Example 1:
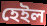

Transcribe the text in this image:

হেইল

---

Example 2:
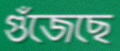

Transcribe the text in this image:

গুঁজেছে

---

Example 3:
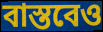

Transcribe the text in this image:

বাস্তবেও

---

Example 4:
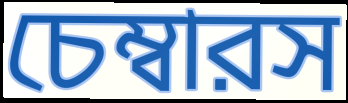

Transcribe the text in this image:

চেম্বারস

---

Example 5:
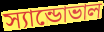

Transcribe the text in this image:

স্যান্ডোভাল